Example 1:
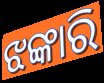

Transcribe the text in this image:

ଝଙ୍କାରି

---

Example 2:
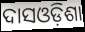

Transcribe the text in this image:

ଦାସଓଡ଼ିଶା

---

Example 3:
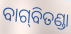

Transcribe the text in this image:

ବାଗ୍‍ବିତଣ୍ଡା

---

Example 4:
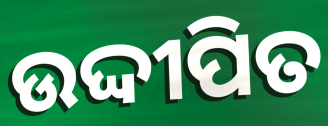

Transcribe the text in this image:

ଉଦ୍ଦୀପିତ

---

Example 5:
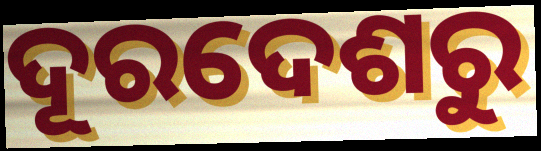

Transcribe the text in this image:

ଦୂରଦେଶରୁ